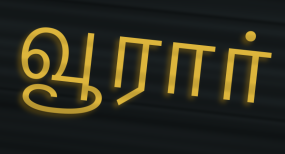
வூரார்